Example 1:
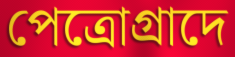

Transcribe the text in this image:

পেত্রোগ্রাদে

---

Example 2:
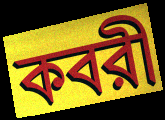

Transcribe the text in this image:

কবরী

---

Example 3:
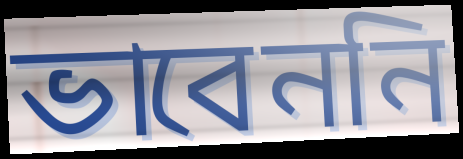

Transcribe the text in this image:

ভাবেননি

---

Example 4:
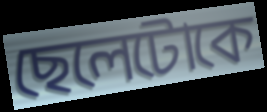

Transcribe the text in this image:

ছেলেটোকে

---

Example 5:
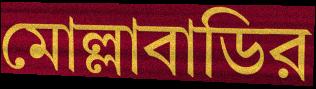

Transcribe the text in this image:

মোল্লাবাডির